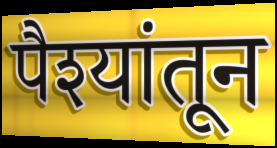
पैश्यांतून